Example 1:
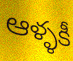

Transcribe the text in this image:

ఆళ్ళకీ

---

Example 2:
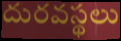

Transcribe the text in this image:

దురవస్థలు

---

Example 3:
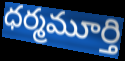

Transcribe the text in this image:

ధర్మమూర్తి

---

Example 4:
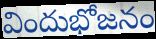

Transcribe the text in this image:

విందుభోజనం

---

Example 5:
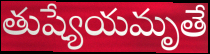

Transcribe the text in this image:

తుష్యేయమృతే